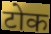
टोक